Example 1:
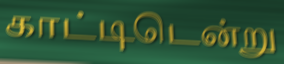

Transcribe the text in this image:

காட்டிடென்று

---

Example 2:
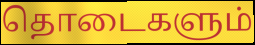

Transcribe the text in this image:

தொடைகளும்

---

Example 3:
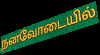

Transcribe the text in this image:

நனவோடையில்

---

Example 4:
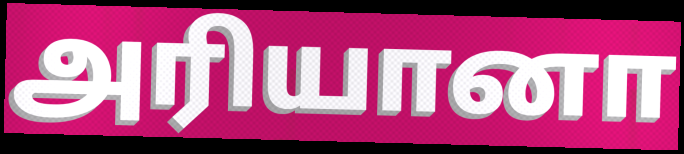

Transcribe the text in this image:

அரியானா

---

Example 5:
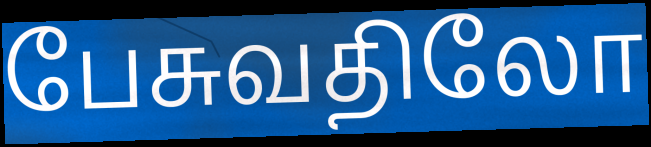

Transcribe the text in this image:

பேசுவதிலோ